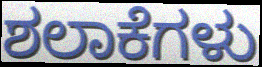
ಶಲಾಕೆಗಳು